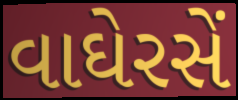
વાઘેરસેં